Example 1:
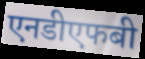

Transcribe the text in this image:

एनडीएफबी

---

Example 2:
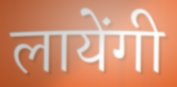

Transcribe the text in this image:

लायेंगी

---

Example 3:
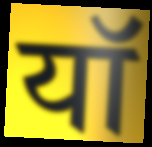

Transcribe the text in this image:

यॉ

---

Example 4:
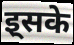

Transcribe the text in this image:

इ्सके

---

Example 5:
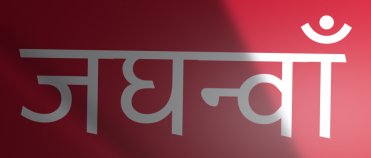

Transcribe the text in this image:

जघन्वाँ